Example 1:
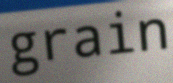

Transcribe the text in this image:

grain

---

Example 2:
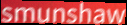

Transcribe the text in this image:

smunshaw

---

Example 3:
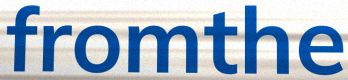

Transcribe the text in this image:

fromthe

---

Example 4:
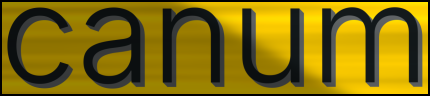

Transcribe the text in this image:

canum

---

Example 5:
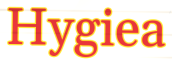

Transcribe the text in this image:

Hygiea